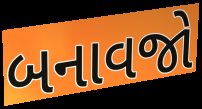
બનાવજો